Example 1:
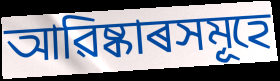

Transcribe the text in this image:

আৱিষ্কাৰসমূহে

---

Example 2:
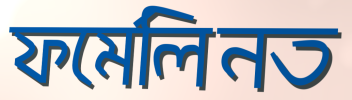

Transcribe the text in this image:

ফৰ্মেলিনত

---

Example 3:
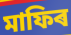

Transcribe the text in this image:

মাফিৰ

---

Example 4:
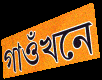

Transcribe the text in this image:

গাওঁখনে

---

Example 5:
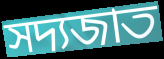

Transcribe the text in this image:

সদ্যজাত